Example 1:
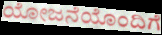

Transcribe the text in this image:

ಯೋಜನೆಯೊಂದಿಗೆ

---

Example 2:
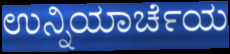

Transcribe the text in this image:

ಉನ್ನಿಯಾರ್ಚೆಯ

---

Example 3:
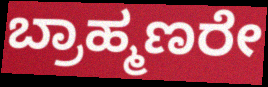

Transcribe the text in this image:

ಬ್ರಾಹ್ಮಣರೇ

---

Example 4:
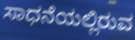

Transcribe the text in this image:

ಸಾಧನೆಯಲ್ಲಿರುವ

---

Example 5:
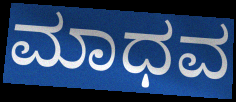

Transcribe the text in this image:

ಮಾಧವ